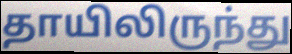
தாயிலிருந்து